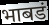
भाबडं